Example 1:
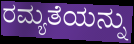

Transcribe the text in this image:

ರಮ್ಯತೆಯನ್ನು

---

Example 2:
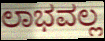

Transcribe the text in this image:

ಲಾಭವಲ್ಲ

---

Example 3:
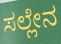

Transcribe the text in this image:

ಸಲ್ಲೇನ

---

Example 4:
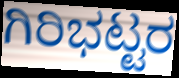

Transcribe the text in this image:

ಗಿರಿಭಟ್ಟರ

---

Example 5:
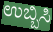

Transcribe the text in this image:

ಉಬ್ಬಿಸಿ